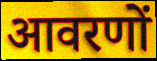
आवरणों